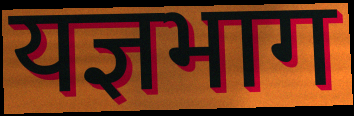
यज्ञभाग